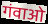
गंवाओ